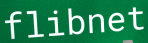
flibnet